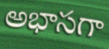
అభాసగా